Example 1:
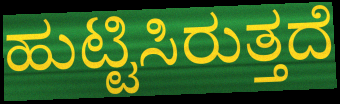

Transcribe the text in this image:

ಹುಟ್ಟಿಸಿರುತ್ತದೆ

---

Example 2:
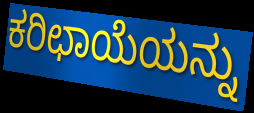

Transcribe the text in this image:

ಕರಿಛಾಯೆಯನ್ನು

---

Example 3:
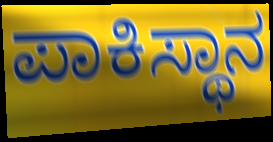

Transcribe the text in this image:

ಪಾಕಿಸ್ಥಾನ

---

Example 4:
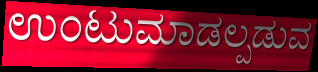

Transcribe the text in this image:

ಉಂಟುಮಾಡಲ್ಪಡುವ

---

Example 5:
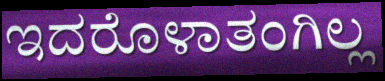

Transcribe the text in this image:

ಇದರೊಳಾತಂಗಿಲ್ಲ